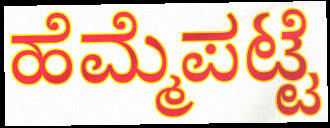
ಹೆಮ್ಮೆಪಟ್ಟೆ